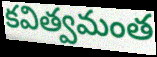
కవిత్వమంత